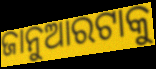
ଜାନୁଆରଟାକୁ